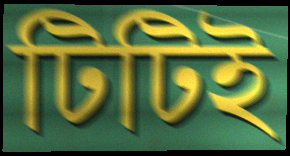
টিটিই